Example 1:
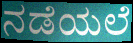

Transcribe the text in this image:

ನಡೆಯಲೆ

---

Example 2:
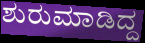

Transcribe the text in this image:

ಶುರುಮಾಡಿದ್ದ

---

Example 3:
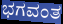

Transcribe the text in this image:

ಭಗವಂತ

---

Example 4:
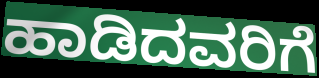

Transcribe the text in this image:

ಹಾಡಿದವರಿಗೆ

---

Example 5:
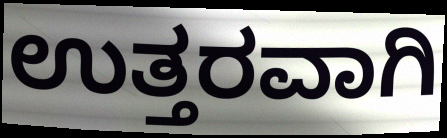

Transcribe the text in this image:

ಉತ್ತರವಾಗಿ